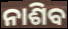
ନାଶିବ